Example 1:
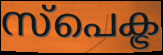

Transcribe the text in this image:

സ്‌പെക്ട്ര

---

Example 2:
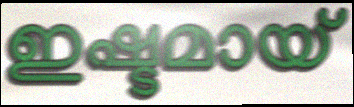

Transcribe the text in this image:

ഇഷ്ടമായ്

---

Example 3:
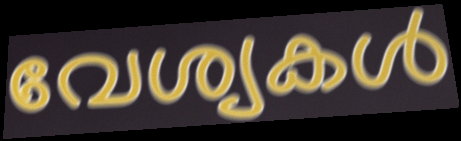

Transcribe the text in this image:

വേശ്യകൾ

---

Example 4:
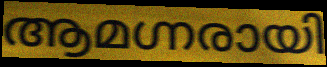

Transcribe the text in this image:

ആമഗ്നരായി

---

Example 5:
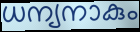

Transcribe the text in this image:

ധന്യനാകും